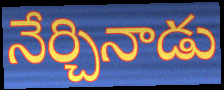
నేర్చినాడు